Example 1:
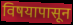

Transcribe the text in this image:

विषयापासून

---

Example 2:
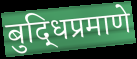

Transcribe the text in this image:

बुद्धिप्रमाणे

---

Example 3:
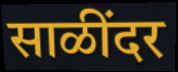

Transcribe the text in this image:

साळींदर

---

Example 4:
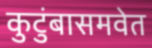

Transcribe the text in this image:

कुटुंबासमवेत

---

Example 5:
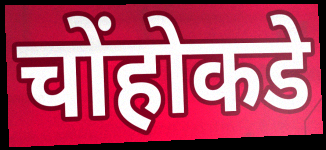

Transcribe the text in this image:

चोंहोकडे